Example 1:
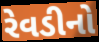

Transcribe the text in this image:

રેવડીનો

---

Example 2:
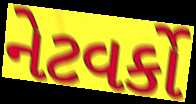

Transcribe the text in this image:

નેટવર્કો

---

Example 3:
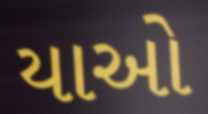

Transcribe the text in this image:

યાઓ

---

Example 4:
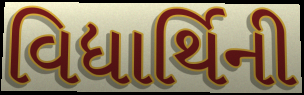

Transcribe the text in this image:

વિદ્યાર્થિની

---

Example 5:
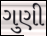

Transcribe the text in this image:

ગુણી